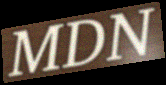
MDN